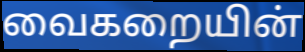
வைகறையின்